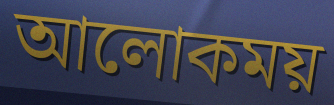
আলোকময়